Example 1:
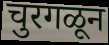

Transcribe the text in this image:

चुरगळून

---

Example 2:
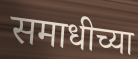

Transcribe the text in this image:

समाधीच्या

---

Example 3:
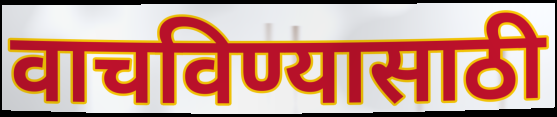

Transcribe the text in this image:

वाचविण्यासाठी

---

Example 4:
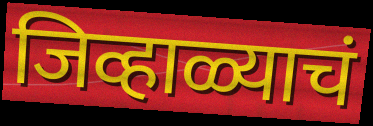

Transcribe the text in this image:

जिव्हाळ्याचं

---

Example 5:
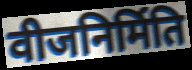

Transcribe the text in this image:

वीजनिर्मिति